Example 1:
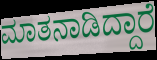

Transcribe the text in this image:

ಮಾತನಾಡಿದ್ದಾರೆ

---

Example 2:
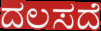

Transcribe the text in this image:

ದಲಸದೆ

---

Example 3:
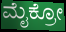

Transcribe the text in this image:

ಮೈಕ್ರೋ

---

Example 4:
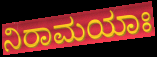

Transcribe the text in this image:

ನಿರಾಮಯಾಃ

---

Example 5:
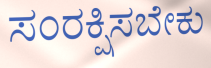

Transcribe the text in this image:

ಸಂರಕ್ಷಿಸಬೇಕು